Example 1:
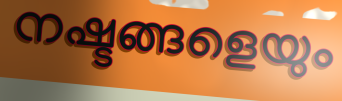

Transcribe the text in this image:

നഷ്ടങ്ങളെയും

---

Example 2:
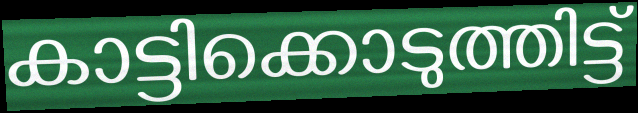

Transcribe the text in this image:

കാട്ടിക്കൊടുത്തിട്ട്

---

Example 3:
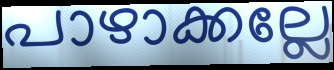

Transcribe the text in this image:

പാഴാക്കല്ലേ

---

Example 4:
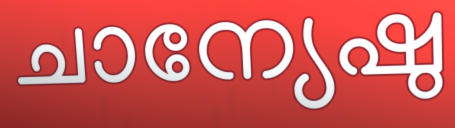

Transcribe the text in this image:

ചാന്യേഷു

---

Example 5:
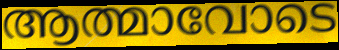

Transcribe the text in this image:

ആത്മാവോടെ